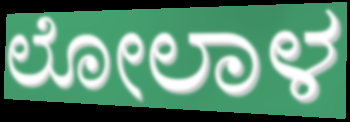
ಲೋಲಾಳ